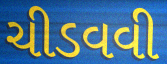
ચીડવવી